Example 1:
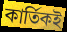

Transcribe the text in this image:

কার্তিকই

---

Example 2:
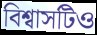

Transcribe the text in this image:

বিশ্বাসটিও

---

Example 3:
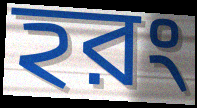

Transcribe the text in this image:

হরং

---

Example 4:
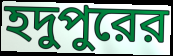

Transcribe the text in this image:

হদুপুরের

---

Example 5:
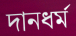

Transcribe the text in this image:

দানধর্ম